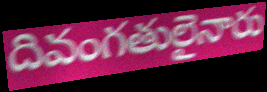
దివంగతులైనారు